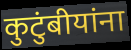
कुटुंबीयांना